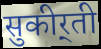
सुकीर्ती